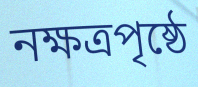
নক্ষত্রপৃষ্ঠে